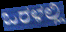
ಒರಳಲ್ಲಿ